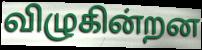
விழுகின்றன